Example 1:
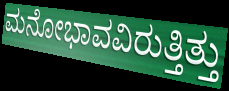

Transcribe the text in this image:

ಮನೋಭಾವವಿರುತ್ತಿತ್ತು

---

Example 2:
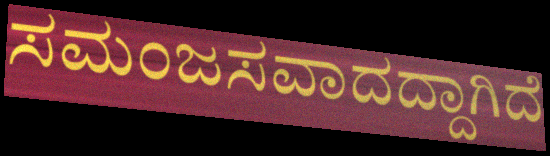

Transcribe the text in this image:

ಸಮಂಜಸವಾದದ್ದಾಗಿದೆ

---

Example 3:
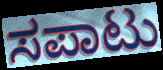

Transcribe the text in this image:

ಸಪಾಟು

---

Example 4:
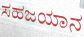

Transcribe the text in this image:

ಸಹಜಯಾನ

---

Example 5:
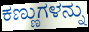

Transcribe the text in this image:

ಕಣ್ಣುಗಳನ್ನು